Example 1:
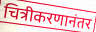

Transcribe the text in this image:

चित्रीकरणानंतर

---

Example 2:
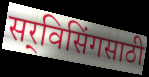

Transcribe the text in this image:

सर्विसिंगसाठी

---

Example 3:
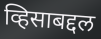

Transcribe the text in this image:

व्हिसाबद्दल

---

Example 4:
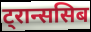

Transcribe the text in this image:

ट्रान्ससिब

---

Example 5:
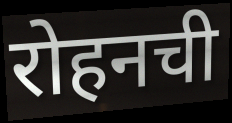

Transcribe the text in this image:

रोहनची